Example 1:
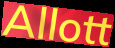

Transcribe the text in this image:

Allott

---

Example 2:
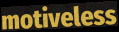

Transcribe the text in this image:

motiveless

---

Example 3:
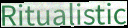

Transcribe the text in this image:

Ritualistic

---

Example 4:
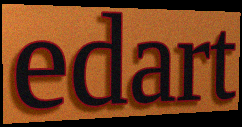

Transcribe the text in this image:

edart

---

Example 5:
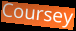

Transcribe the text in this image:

Coursey